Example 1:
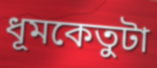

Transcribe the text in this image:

ধূমকেতুটা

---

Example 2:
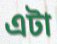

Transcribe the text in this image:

এটা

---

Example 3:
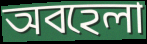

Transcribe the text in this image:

অবহেলা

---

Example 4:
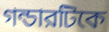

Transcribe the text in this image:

গন্ডারটিকে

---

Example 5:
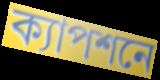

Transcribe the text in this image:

ক্যাপশনে